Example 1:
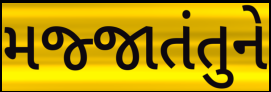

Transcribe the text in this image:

મજ્જાતંતુને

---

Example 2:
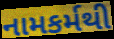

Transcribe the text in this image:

નામકર્મથી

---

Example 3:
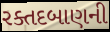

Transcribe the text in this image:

રક્તદબાણની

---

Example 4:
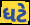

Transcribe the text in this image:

ધટે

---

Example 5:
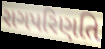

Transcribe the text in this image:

રાગપરિણતિ